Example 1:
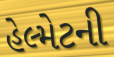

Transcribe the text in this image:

હેલ્મેટની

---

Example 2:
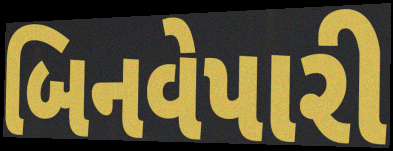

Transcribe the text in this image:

બિનવેપારી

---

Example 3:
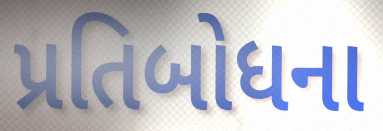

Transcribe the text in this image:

પ્રતિબોધના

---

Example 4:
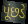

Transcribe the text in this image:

પૂંછડે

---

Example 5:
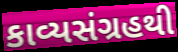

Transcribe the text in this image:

કાવ્યસંગ્રહથી